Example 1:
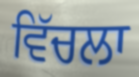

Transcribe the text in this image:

ਵਿੱਚਲਾ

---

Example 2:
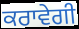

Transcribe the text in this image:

ਕਰਾਵੇਗੀ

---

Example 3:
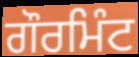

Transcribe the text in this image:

ਗੌਰਮਿੰਟ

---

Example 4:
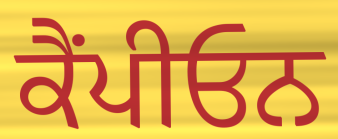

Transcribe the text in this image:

ਕੈਂਪੀਓਨ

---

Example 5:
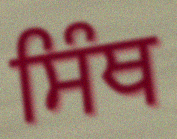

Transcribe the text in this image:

ਸਿੰਥ